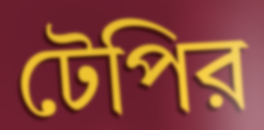
টেপির